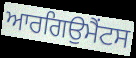
ਆਰਗਿਉਮੈਂਟਸ